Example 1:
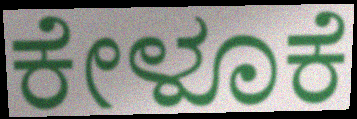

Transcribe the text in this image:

ಕೇಳೂಕೆ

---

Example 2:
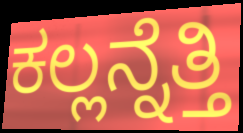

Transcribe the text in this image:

ಕಲ್ಲನ್ನೆತ್ತಿ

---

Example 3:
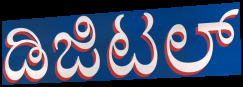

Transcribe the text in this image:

ಡಿಜಿಟಲ್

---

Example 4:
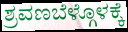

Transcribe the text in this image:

ಶ್ರವಣಬೆಳ್ಗೊಳಕ್ಕೆ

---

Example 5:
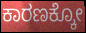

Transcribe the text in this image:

ಕಾರಣಕ್ಕೋ